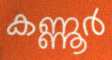
കണ്ണൂർ